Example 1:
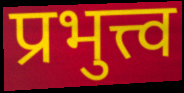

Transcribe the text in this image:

प्रभुत्त्व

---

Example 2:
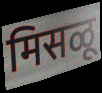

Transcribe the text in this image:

मिसळू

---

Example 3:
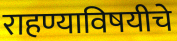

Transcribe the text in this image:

राहण्याविषयीचे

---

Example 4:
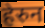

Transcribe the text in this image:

हेरुन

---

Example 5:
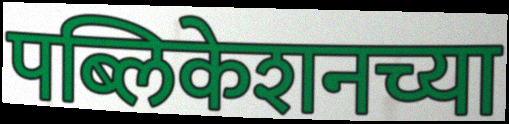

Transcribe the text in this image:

पब्लिकेशनच्या